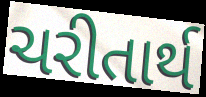
ચરીતાર્થ